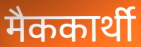
मैककार्थी